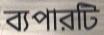
ব্যপারটি